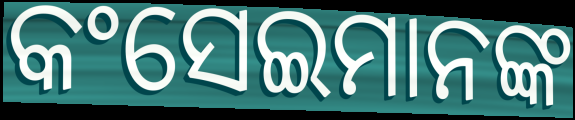
କଂସେଇମାନଙ୍କ